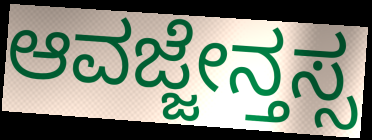
ಆವಜ್ಜೇನ್ತಸ್ಸ